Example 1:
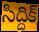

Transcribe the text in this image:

సిద్దిక్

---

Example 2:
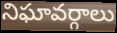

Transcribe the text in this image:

నిఘావర్గాలు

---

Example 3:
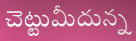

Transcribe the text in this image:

చెట్టుమీదున్న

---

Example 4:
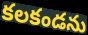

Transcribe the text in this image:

కలకండను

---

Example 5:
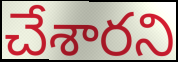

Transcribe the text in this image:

చేశారని